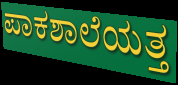
ಪಾಕಶಾಲೆಯತ್ತ